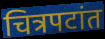
चित्रपटांत